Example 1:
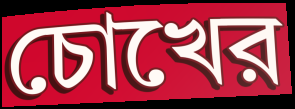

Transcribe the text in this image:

চোখের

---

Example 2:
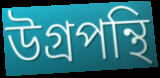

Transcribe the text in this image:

উগ্রপন্থি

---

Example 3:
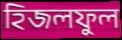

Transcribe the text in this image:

হিজলফুল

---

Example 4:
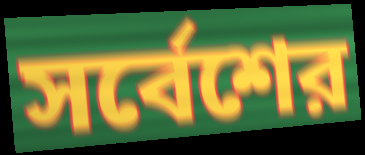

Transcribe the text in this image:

সর্বেশের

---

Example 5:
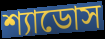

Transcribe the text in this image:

শ্যাডোস